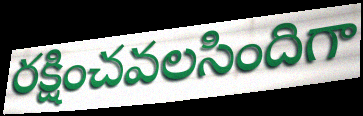
రక్షించవలసిందిగా